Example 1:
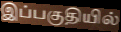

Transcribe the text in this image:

இப்பகுதியில்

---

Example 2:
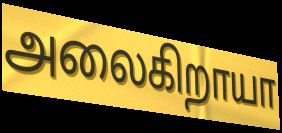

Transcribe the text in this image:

அலைகிறாயா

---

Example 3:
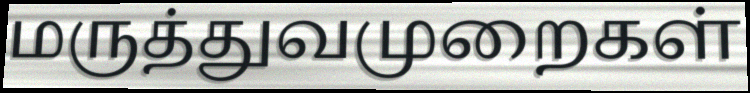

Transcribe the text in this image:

மருத்துவமுறைகள்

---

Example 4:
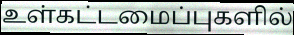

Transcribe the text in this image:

உள்கட்டமைப்புகளில்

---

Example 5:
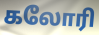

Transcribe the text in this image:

கலோரி